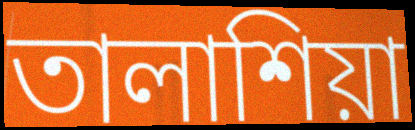
তালাশিয়া